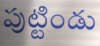
పుట్టిండు